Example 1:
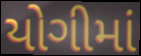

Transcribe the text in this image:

યોગીમાં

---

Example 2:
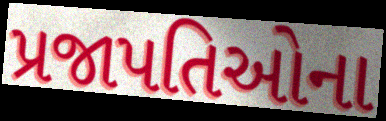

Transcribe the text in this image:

પ્રજાપતિઓના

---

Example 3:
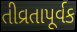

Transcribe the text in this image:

તીવ્રતાપૂર્વક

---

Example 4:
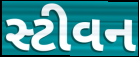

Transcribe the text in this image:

સ્ટીવન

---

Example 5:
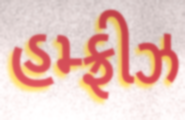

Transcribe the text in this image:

હમ્ફ્રીઝ